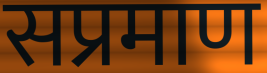
सप्रमाण